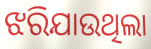
ଝରିଯାଉଥିଲା